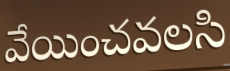
వేయించవలసి